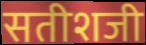
सतीशजी